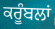
ਕਰੂੰਬਲਾਂ